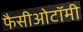
फैसीओटॉमी